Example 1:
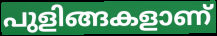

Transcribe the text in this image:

പുളിങ്ങകളാണ്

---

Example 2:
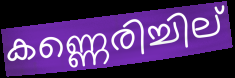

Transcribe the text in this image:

കണ്ണെരിച്ചില്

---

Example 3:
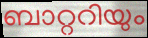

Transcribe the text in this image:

ബാറ്ററിയും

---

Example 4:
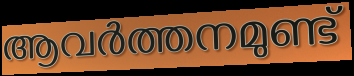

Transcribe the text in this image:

ആവർത്തനമുണ്ട്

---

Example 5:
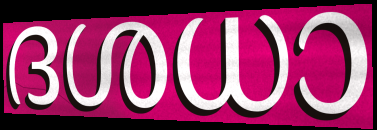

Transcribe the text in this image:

ദശധാ